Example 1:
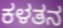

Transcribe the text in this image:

ಕಳತನ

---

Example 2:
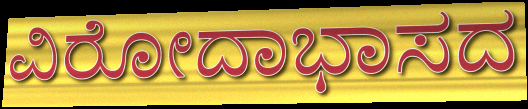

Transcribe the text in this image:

ವಿರೋದಾಭಾಸದ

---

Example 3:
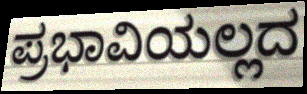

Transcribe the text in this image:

ಪ್ರಭಾವಿಯಲ್ಲದ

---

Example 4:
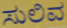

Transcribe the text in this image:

ಸುಲಿವ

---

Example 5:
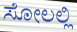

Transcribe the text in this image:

ಸೋಲಲ್ಲಿ